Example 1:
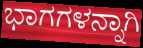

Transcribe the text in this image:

ಭಾಗಗಳನ್ನಾಗಿ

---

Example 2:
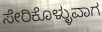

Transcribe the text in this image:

ಸೇರಿಕೊಳ್ಳುವಾಗ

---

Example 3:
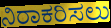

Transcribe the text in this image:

ನಿರಾಕರಿಸಲು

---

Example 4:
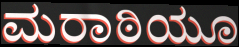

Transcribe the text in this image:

ಮರಾಠಿಯೂ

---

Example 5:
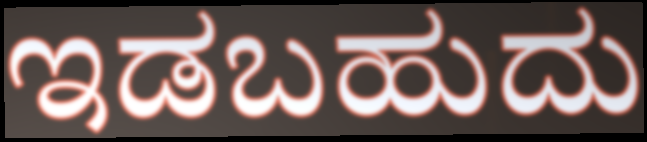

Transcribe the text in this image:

ಇಡಬಹುದು